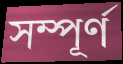
সম্পূর্ণ